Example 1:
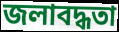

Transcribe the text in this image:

জলাবদ্ধতা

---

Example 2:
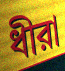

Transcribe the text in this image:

ধীরা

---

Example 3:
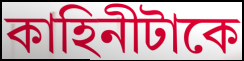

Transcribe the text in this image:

কাহিনীটাকে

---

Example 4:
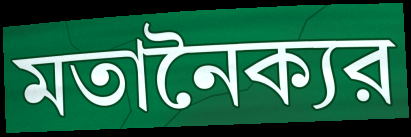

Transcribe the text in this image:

মতানৈক্যর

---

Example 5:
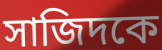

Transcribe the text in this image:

সাজিদকে